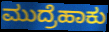
ಮುದ್ರೆಹಾಕು